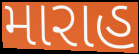
મારાહ